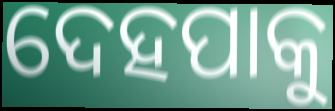
ଦେହପାକୁ